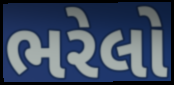
ભરેલો